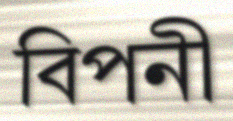
বিপনী